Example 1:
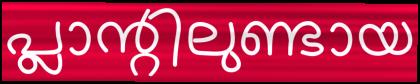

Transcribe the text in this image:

പ്ലാന്റിലുണ്ടായ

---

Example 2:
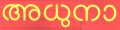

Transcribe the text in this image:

അധുനാ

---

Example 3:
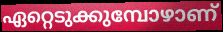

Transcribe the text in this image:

ഏറ്റെടുക്കുമ്പോഴാണ്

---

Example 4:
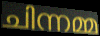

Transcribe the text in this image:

ചിന്നമ്മ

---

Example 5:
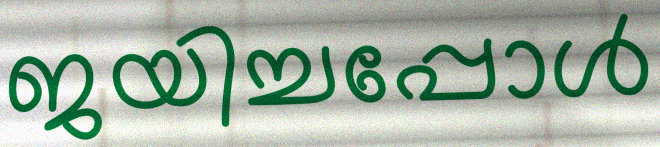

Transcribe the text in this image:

ജയിച്ചപ്പോൾ